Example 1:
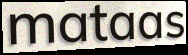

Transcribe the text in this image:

mataas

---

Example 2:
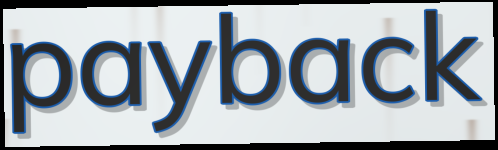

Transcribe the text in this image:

payback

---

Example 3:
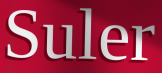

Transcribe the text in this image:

Suler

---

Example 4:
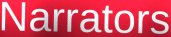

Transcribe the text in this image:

Narrators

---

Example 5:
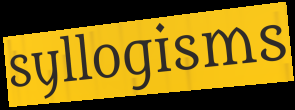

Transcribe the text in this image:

syllogisms